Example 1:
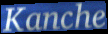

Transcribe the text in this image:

Kanche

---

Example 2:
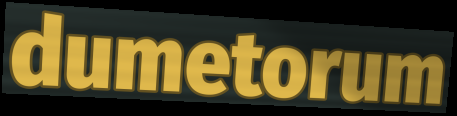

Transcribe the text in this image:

dumetorum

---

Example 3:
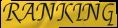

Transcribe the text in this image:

RANKING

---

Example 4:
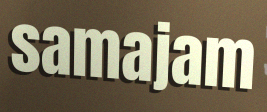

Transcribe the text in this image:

samajam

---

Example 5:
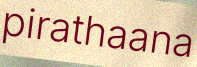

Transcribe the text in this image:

pirathaana